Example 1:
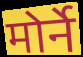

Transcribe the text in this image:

मोर्ने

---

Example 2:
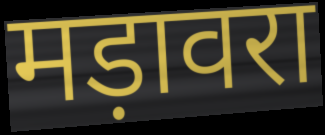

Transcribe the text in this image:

मड़ावरा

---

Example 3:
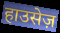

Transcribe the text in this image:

हाउसेज़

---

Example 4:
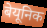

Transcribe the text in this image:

बेयूनिक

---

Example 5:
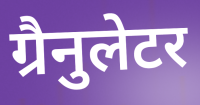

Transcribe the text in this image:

ग्रैनुलेटर